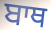
ਬਾਥ